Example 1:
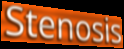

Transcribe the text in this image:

Stenosis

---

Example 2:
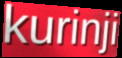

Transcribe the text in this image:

kurinji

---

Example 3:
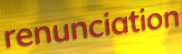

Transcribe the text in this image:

renunciation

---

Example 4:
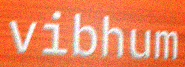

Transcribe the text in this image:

vibhum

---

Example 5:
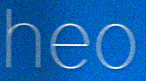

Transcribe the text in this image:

heo